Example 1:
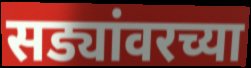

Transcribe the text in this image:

सड्यांवरच्या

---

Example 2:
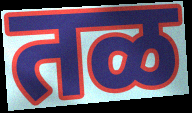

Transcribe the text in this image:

तळ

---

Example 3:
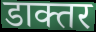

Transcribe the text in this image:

डाक्तर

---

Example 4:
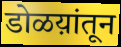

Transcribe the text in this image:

डोळय़ांतून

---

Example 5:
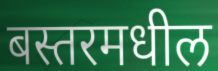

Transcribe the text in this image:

बस्तरमधील